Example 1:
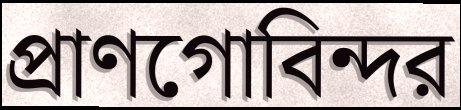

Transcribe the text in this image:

প্রাণগোবিন্দর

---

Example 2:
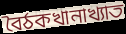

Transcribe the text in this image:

বৈঠকখানাখ্যাত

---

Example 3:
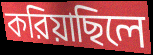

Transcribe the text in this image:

করিয়াছিলে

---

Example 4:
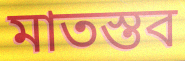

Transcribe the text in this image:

মাতস্তব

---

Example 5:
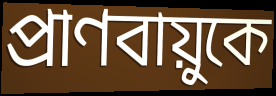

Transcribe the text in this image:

প্রাণবায়ুকে